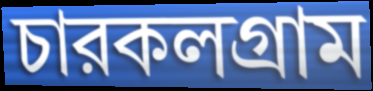
চারকলগ্রাম